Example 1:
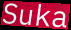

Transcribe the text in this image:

Suka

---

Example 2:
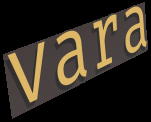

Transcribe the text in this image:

vara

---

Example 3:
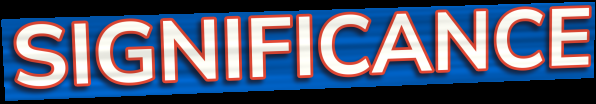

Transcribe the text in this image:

SIGNIFICANCE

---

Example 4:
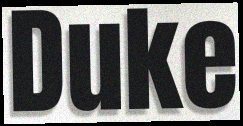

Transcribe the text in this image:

Duke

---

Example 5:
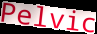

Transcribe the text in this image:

Pelvic